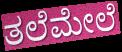
ತಲೆಮೇಲೆ